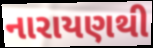
નારાયણથી